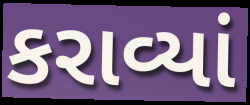
કરાવ્યાં